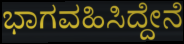
ಭಾಗವಹಿಸಿದ್ದೇನೆ